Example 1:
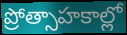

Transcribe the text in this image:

ప్రోత్సాహకాల్లో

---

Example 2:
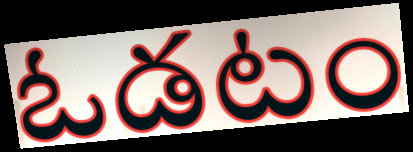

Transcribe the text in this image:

ఓడటం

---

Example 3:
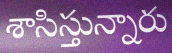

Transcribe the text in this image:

శాసిస్తున్నారు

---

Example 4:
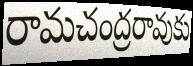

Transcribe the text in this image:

రామచంద్రరావుకు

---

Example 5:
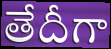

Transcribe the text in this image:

తేదీగా